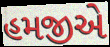
હમજીએ